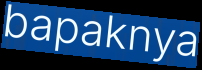
bapaknya